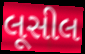
લૂસીલ